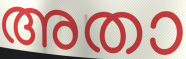
അതാ